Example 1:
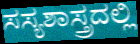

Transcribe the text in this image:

ಸಸ್ಯಶಾಸ್ತ್ರದಲ್ಲಿ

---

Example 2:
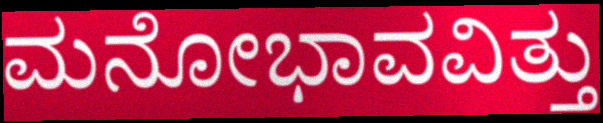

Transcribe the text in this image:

ಮನೋಭಾವವಿತ್ತು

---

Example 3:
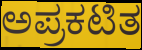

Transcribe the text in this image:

ಅಪ್ರಕಟಿತ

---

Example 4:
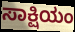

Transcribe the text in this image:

ಸಾಕ್ಷಿಯಂ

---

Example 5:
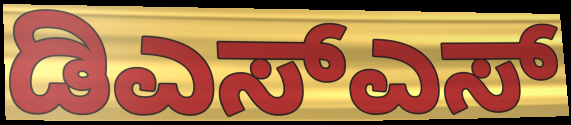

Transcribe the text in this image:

ಡಿಎಸ್ಎಸ್